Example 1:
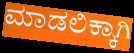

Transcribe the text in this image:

ಮಾಡಲಿಕ್ಕಾಗಿ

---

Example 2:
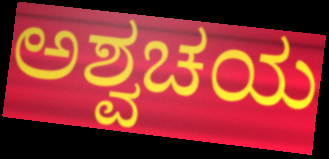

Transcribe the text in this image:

ಅಶ್ವಚಯ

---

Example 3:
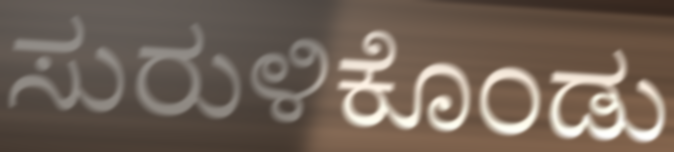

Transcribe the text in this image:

ಸುರುಳಿಕೊಂಡು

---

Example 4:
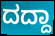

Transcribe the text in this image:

ದದ್ದಾ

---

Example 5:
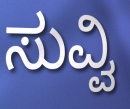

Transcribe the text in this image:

ಸುವ್ವಿ